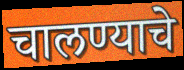
चालण्याचे